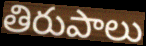
తిరుపాలు